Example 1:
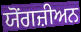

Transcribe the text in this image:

ਯੋਂਗਜ਼ੀਅਨ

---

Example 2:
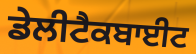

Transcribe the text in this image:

ਡੇਲੀਟੈਕਬਾਈਟ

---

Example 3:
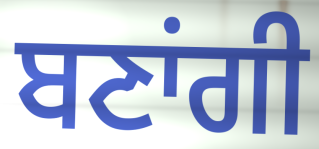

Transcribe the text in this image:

ਬਣਾਂਗੀ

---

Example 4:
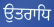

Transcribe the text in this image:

ਉਤਰਾਧਿ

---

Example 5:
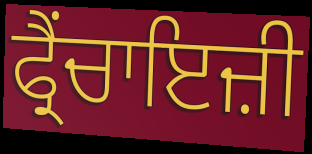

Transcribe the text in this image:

ਫ੍ਰੈਂਚਾਇਜ਼ੀ